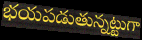
భయపడుతున్నట్టుగా